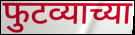
फुटव्याच्या